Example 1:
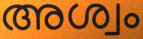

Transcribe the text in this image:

അശ്വം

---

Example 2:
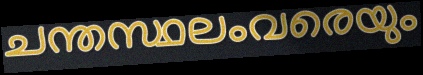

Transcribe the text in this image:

ചന്തസ്ഥലംവരെയും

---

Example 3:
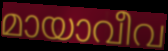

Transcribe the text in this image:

മായാവീവ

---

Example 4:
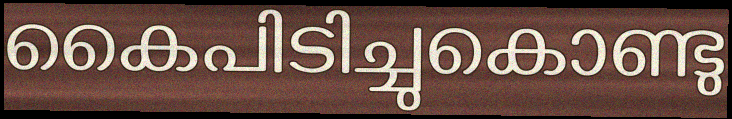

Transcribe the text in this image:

കൈപിടിച്ചുകൊണ്ടു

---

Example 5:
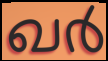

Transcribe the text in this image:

ഖർ